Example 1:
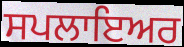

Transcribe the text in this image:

ਸਪਲਾਇਅਰ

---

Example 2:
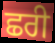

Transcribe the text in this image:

ਛਰੀ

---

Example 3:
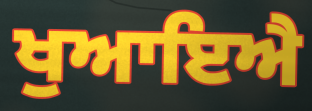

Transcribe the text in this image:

ਖੁਆਇਐ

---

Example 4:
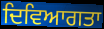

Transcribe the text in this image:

ਦਿਵਿਆਗਤਾ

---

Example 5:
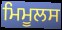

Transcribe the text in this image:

ਮਿਮੂਲਸ